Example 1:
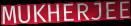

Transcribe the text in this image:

MUKHERJEE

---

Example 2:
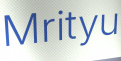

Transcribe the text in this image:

Mrityu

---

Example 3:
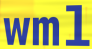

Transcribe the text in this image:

wml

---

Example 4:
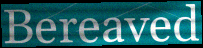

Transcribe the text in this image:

Bereaved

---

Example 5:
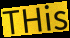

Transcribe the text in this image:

THis